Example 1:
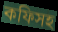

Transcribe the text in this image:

কফিসহ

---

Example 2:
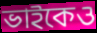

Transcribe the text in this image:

ভাইকেও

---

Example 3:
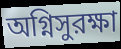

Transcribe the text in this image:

অগ্নিসুরক্ষা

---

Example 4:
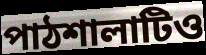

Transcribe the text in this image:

পাঠশালাটিও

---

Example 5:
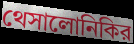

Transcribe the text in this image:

থেসালোনিকির